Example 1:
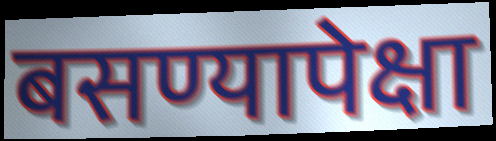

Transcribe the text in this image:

बसण्यापेक्षा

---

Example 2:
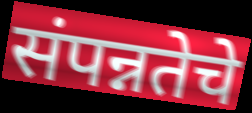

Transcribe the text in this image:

संपन्नतेचे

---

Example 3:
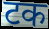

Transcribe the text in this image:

टक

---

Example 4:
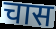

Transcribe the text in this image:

चास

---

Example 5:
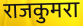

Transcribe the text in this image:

राजकुमरा